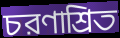
চরণাশ্রিত